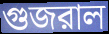
গুজরাল